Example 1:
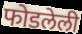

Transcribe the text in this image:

फोडलेली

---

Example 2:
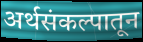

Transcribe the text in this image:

अर्थसंकल्पातून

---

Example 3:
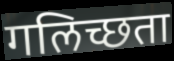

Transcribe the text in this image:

गलिच्छता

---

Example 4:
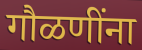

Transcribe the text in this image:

गौळणींना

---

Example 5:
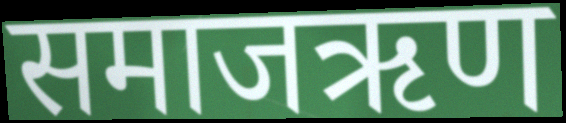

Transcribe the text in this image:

समाजऋण